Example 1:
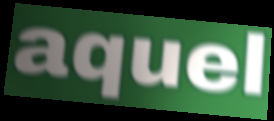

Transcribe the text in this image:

aquel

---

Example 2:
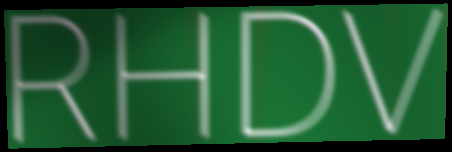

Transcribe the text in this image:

RHDV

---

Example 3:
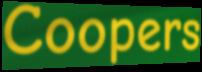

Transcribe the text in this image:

Coopers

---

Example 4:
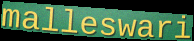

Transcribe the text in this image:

malleswari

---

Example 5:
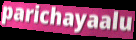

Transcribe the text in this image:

parichayaalu